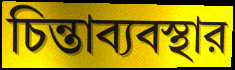
চিন্তাব্যবস্থার